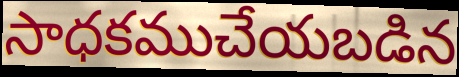
సాధకముచేయబడిన